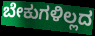
ಬೇಕುಗಳಿಲ್ಲದ